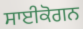
ਸਾਈਕੋਗਨ